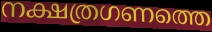
നക്ഷത്രഗണത്തെ